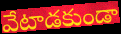
వేటాడకుండా